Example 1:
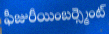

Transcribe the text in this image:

ఫీజురీయింబర్స్మెంట్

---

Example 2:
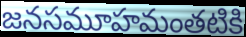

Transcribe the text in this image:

జనసమూహమంతటికి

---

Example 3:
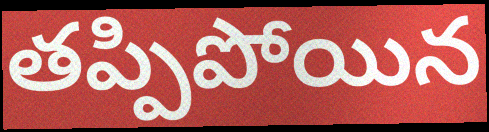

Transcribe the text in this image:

తప్పిపోయిన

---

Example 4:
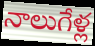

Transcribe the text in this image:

నాలుగేళ్ల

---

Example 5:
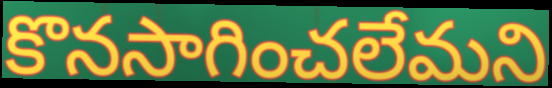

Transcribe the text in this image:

కొనసాగించలేమని